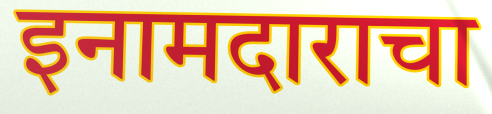
इनामदाराचा